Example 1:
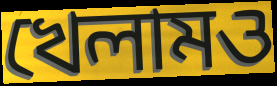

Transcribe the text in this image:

খেলামও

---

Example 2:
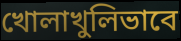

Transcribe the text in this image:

খোলাখুলিভাবে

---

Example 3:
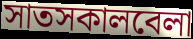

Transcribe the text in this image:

সাতসকালবেলা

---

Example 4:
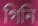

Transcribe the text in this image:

গিনি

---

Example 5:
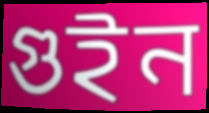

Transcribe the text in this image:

গুইন